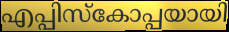
എപ്പിസ്കോപ്പയായി